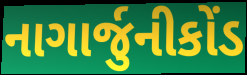
નાગાર્જુનીકોંડ